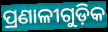
ପ୍ରଣାଳୀଗୁଡ଼ିକ